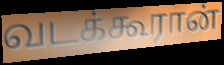
வடக்கூரான்